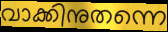
വാക്കിനുതന്നെ